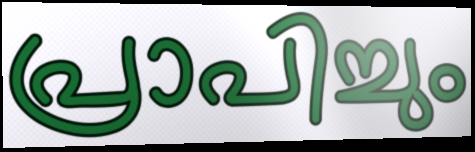
പ്രാപിച്ചും